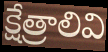
క్షేత్రాలివి